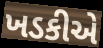
ખડકીએ